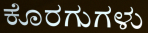
ಕೊರಗುಗಳು